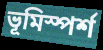
ভূমিস্পর্শ